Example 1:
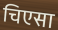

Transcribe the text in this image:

चिएसा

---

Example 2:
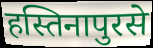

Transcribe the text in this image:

हस्तिनापुरसे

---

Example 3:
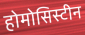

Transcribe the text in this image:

होमोसिस्टीन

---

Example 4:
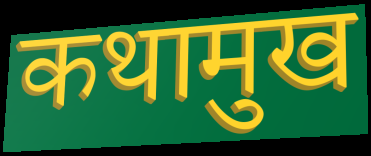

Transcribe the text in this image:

कथामुख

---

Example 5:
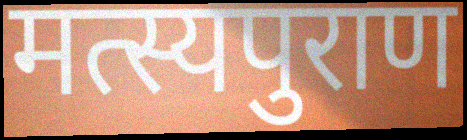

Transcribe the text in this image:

मत्स्यपुराण